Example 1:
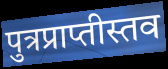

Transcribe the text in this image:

पुत्रप्राप्तीस्तव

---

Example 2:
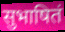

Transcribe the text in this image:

सुभाषितं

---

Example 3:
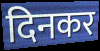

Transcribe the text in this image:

दिनकर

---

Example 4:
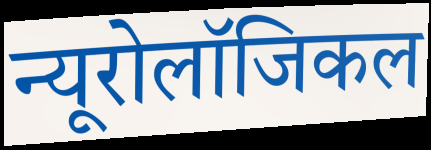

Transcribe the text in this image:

न्यूरोलॉजिकल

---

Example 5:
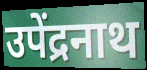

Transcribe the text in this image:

उपेंद्रनाथ